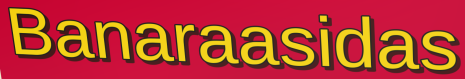
Banaraasidas